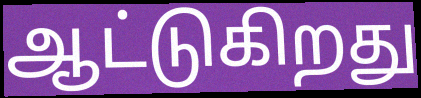
ஆட்டுகிறது